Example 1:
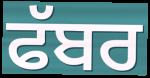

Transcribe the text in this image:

ਫੱਬਰ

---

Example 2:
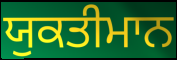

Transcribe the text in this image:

ਯੁਕਤੀਮਾਨ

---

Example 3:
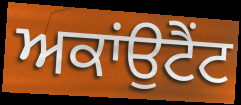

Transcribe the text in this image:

ਅਕਾਂਉਟੈਂਟ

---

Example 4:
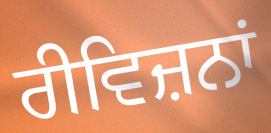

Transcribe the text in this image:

ਰੀਵਿਜ਼ਨਾਂ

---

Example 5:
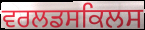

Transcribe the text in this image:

ਵਰਲਡਸਕਿਲਸ